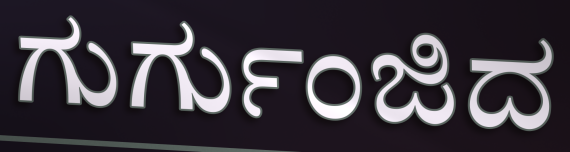
ಗುರ್ಗುಂಜಿದ